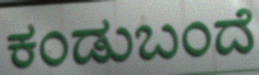
ಕಂಡುಬಂದೆ